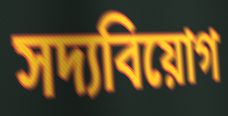
সদ্যবিয়োগ